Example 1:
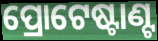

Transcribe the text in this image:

ପ୍ରୋଟେଷ୍ଟାଣ୍ଟ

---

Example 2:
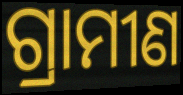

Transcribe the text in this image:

ଗ୍ରାମୀଣ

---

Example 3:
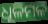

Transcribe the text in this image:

ଧୂଳିମଳି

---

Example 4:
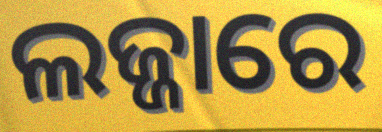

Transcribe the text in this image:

ଲଜ୍ଜାରେ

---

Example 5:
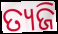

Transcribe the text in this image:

ତ୍ୟଜି